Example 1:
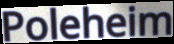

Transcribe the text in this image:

Poleheim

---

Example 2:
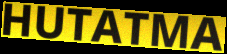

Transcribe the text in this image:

HUTATMA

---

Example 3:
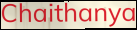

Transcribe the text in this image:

Chaithanya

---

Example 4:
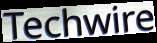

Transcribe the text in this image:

Techwire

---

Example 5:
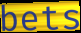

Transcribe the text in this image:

bets